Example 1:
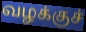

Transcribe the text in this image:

வழக்குச்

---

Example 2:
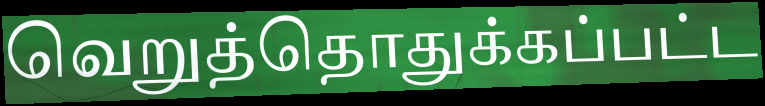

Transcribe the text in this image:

வெறுத்தொதுக்கப்பட்ட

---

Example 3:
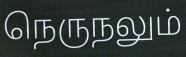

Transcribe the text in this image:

நெருநலும்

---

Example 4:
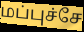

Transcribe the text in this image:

மப்புச்சே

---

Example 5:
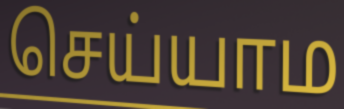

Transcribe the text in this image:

செய்யாம